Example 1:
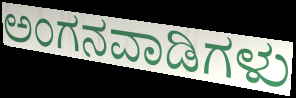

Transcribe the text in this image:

ಅಂಗನವಾಡಿಗಳು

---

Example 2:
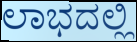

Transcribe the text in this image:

ಲಾಭದಲ್ಲಿ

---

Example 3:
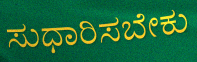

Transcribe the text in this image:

ಸುಧಾರಿಸಬೇಕು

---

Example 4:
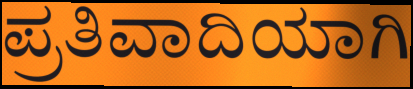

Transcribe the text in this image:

ಪ್ರತಿವಾದಿಯಾಗಿ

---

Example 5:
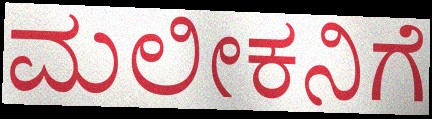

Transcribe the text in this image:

ಮಲೀಕನಿಗೆ